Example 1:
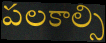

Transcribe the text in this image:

పలకాల్సి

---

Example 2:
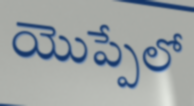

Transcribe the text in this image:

యొప్పేలో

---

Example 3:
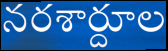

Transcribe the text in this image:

నరశార్దూల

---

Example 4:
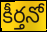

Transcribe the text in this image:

కీర్తనో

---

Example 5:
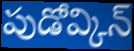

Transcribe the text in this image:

పుడోవ్కిన్